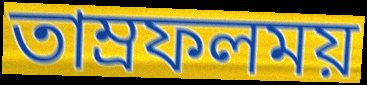
তাম্রফলময়